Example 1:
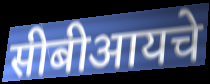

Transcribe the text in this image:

सीबीआयचे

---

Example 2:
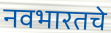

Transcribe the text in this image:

नवभारतचे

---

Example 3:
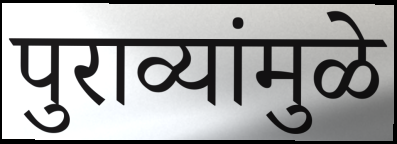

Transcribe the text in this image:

पुराव्यांमुळे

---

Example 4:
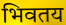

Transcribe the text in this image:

भिवतय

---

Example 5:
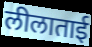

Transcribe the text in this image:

लीलाताई